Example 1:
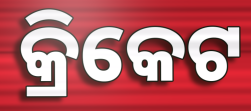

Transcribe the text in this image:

କ୍ରିକେଟ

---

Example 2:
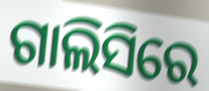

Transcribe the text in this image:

ଗାଲିସିରେ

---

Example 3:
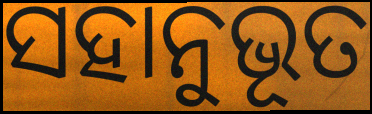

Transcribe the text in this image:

ସହାନୁଭୂତ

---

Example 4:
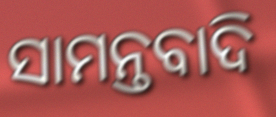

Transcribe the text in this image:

ସାମନ୍ତବାଦି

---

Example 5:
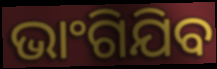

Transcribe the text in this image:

ଭାଂଗିଯିବ